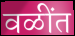
वळींत